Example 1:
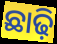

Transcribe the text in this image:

ଛାଢ଼ି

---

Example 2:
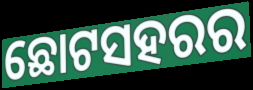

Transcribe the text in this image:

ଛୋଟସହରର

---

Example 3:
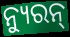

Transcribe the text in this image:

ନ୍ୟୁରନ୍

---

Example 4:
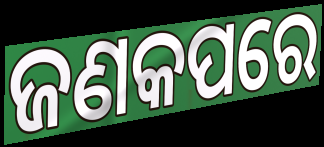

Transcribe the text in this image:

ଜଣକପରେ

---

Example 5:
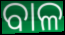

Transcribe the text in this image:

ବାଳ